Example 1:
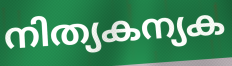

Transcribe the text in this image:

നിത്യകന്യക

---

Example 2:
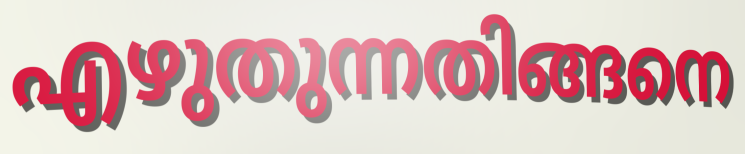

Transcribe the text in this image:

എഴുതുന്നതിങ്ങനെ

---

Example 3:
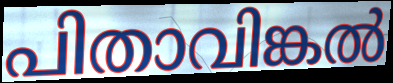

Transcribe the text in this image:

പിതാവിങ്കൽ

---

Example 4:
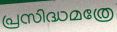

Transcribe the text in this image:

പ്രസിദ്ധമത്രേ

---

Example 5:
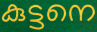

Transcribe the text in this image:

കുട്ടനെ